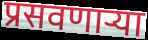
प्रसवणाऱ्या